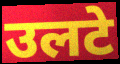
उलटे